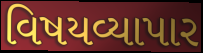
વિષયવ્યાપાર